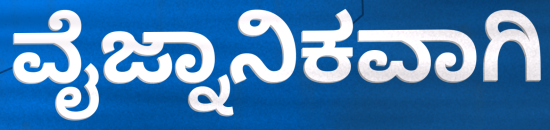
ವೈಜ್ನಾನಿಕವಾಗಿ